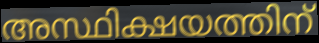
അസ്ഥിക്ഷയത്തിന്